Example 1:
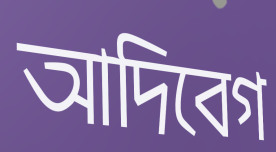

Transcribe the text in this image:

আদিবেগ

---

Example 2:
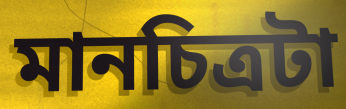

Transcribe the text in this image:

মানচিত্রটা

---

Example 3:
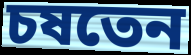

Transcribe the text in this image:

চষতেন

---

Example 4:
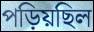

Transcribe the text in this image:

পড়িয়ছিল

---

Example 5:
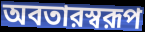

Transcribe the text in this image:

অবতারস্বরূপ